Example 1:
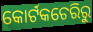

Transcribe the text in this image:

କୋର୍ଟକଚେରିରୁ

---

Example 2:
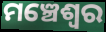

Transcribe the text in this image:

ମଞ୍ଚେଶ୍ଵର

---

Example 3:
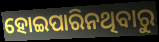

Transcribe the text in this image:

ହୋଇପାରିନଥିବାରୁ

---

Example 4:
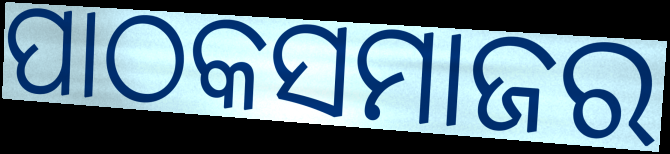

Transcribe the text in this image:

ପାଠକସମାଜର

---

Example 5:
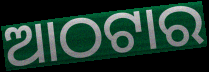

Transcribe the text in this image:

ଆଠଟାର